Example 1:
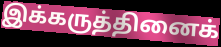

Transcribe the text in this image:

இக்கருத்தினைக்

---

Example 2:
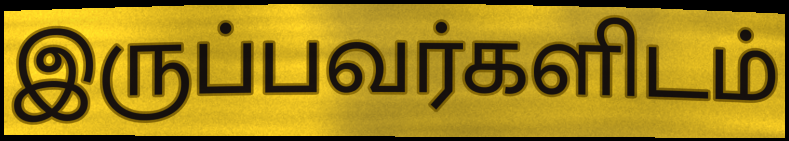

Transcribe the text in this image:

இருப்பவர்களிடம்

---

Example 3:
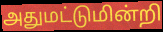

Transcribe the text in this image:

அதுமட்டுமின்றி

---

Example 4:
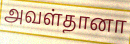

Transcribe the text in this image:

அவள்தானா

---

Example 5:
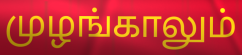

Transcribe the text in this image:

முழங்காலும்